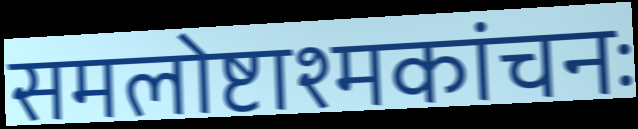
समलोष्टाश्मकांचनः